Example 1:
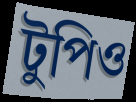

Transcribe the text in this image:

টুপিও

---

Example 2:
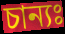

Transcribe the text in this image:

চান্যঃ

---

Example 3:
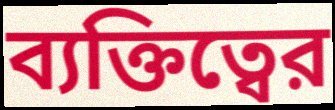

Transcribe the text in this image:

ব্যক্তিত্বের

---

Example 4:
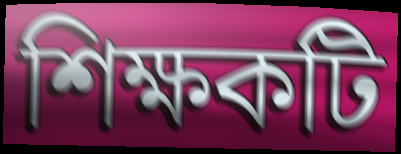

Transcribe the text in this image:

শিক্ষকটি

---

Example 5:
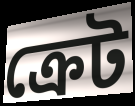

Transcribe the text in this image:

ক্রেট